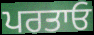
ਪਰਤਾਓ